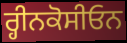
ਰ੍ਹੀਨਕੋਸੀਓਨ